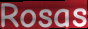
Rosas